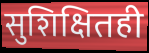
सुशिक्षितही